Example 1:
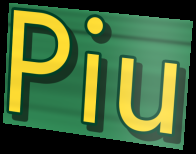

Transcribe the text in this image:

Piu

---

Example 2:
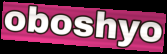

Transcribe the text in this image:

oboshyo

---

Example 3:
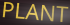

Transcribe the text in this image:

PLANT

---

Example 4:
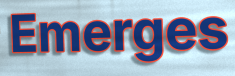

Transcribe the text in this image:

Emerges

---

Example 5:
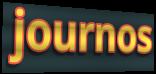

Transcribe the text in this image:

journos